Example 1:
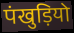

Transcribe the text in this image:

पंखुड़ियो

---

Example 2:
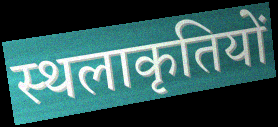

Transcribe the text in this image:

स्थलाकृतियों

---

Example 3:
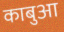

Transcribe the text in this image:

काबुआ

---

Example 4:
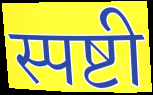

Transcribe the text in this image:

स्पष्टी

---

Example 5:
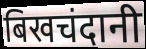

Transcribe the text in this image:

बिखचंदानी